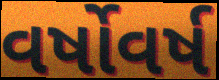
વર્ષોવર્ષ